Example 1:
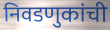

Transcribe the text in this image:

निवडणुकांची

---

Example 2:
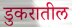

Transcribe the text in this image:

डुकरातील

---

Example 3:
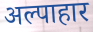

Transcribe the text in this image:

अल्पाहार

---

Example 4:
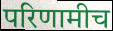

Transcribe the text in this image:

परिणामीच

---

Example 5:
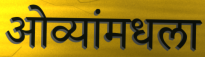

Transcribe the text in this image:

ओव्यांमधला